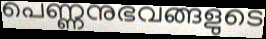
പെണ്ണനുഭവങ്ങളുടെ